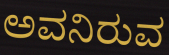
ಅವನಿರುವ